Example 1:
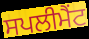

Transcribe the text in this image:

ਸਪਲੀਮੈਂਟ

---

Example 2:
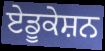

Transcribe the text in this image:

ਏਡੂਕੇਸ਼ਨ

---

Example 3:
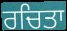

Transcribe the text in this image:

ਰਚਿਤਾ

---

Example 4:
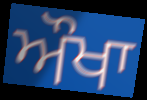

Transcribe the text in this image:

ਔਖਾ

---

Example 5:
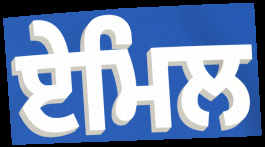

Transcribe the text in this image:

ਏਮਿਲ